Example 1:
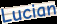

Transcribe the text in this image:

Lucian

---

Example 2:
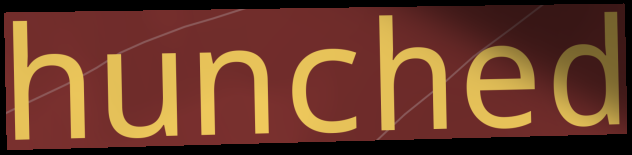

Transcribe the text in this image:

hunched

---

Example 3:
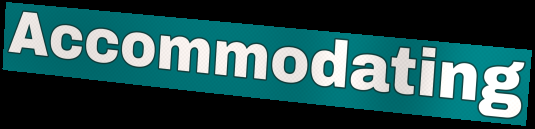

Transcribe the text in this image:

Accommodating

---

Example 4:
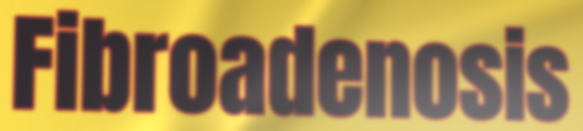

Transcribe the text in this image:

Fibroadenosis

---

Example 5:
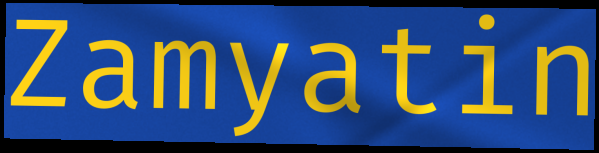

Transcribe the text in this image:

Zamyatin